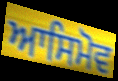
ਆਸਿਮੋਵ